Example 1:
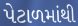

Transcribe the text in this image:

પેટાળમાંથી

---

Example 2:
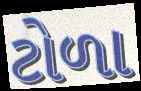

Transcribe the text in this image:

ટોળા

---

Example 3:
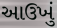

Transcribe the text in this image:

આઉખું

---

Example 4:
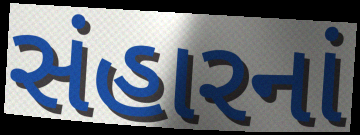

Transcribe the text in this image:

સંહારનાં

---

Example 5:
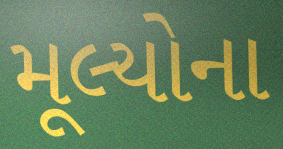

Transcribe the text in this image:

મૂલ્‍યોના